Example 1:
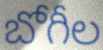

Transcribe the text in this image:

బోగీల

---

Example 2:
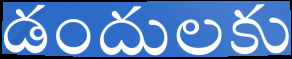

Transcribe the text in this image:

డందులకు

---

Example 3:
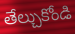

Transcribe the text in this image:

తేల్చుకోండి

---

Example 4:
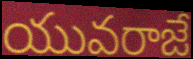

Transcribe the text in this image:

యువరాజే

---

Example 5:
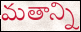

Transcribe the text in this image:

మతాన్ని